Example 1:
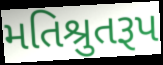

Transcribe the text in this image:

મતિશ્રુતરૂપ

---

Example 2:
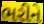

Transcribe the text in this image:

ભરીને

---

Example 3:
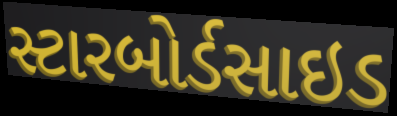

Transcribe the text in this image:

સ્ટારબોર્ડસાઇડ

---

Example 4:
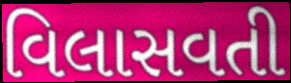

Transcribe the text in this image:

વિલાસવતી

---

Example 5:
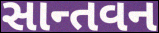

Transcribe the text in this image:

સાન્તવન